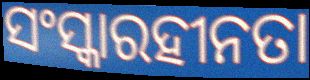
ସଂସ୍କାରହୀନତା